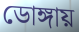
ডোঙ্গায়